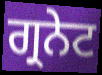
ਗ੍ਰਨੇਟ